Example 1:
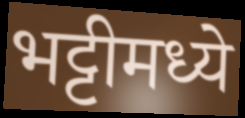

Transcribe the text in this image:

भट्टीमध्ये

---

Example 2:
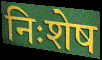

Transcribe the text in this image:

निःशेष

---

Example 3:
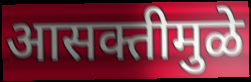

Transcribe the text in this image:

आसक्तीमुळे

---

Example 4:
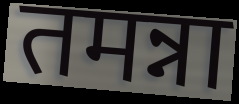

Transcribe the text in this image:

तमन्ना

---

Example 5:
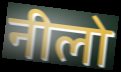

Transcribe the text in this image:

नीलो